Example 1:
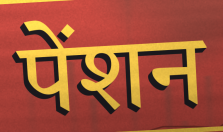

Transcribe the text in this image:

पेंशन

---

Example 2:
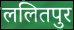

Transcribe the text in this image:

ललितपुर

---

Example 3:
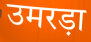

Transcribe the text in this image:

उमरड़ा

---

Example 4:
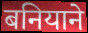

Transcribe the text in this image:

बनियाने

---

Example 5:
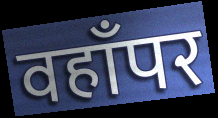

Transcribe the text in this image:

वहाँपर